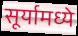
सूर्यामध्ये